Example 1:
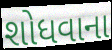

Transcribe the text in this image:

શોધવાના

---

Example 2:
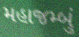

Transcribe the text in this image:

મહાજમ્બું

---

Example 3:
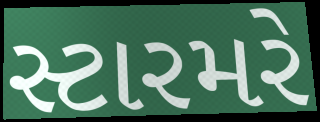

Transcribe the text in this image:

સ્ટારમરે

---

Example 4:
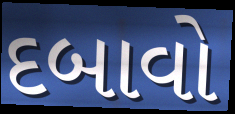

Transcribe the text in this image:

દબાવો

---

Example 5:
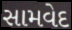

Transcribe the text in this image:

સામવેદ